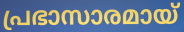
പ്രഭാസാരമായ്